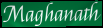
Maghanath